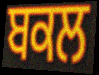
ਬਕਲ